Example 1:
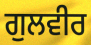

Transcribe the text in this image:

ਗੁਲਵੀਰ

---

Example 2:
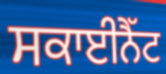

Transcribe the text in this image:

ਸਕਾਈਨੈੱਟ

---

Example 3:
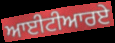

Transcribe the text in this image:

ਆਈਟੀਆਰਏ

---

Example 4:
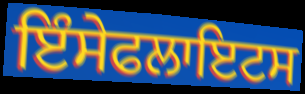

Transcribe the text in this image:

ਇੰਸੇਫਲਾਇਟਸ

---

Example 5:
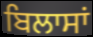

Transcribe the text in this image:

ਬਿਲਾਸਾਂ